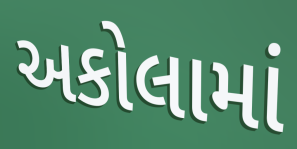
અકોલામાં